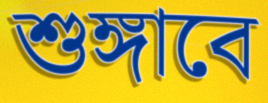
শুঙ্গাবে